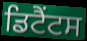
ਡਿਟੈਂਟਸ